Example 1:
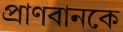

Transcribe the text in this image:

প্রাণবানকে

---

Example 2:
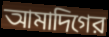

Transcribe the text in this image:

আমাদিগের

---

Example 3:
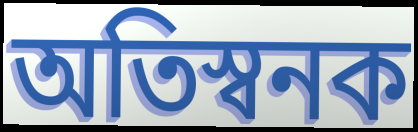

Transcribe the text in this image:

অতিস্বনক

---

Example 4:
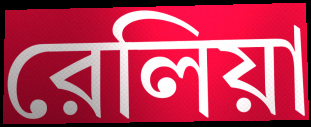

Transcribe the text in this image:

রেলিয়া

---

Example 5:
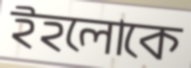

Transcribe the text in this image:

ইহলোকে